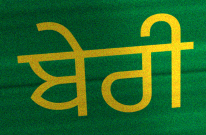
ਬੇਰੀ